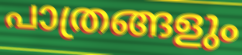
പാത്രങ്ങളും